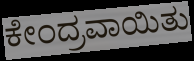
ಕೇಂದ್ರವಾಯಿತು